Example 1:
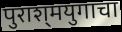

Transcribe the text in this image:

पुराश्मयुगाचा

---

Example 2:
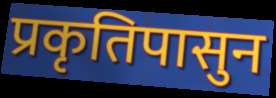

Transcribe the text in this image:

प्रकृतिपासुन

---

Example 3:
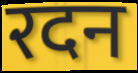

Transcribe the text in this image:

रदन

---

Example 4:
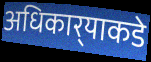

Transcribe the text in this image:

अधिकार्‍याकडे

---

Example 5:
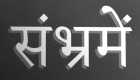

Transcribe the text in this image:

संभ्रमें